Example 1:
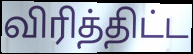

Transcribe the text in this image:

விரித்திட்ட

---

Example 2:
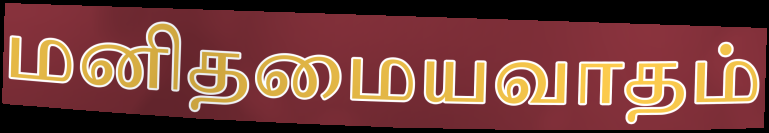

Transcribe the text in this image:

மனிதமையவாதம்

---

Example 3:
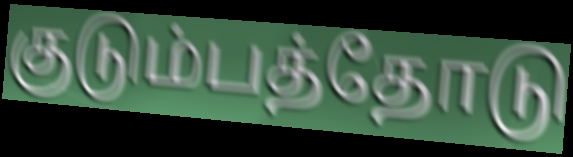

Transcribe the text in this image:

குடும்பத்தோடு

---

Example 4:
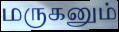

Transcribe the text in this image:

மருகனும்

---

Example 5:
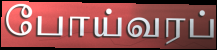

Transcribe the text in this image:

போய்வரப்